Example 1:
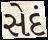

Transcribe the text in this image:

સેદં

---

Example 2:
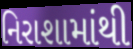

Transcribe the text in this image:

નિરાશામાંથી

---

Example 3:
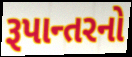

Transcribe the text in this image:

રૂપાન્તરનો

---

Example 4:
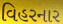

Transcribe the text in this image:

વિહરનાર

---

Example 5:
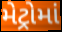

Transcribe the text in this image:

મેટ્રોમાં